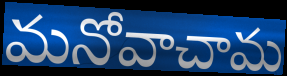
మనోవాచామ